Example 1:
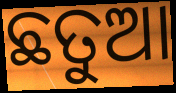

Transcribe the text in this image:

ଛତୁଆ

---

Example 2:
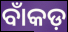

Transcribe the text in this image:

ବାଁକଡ଼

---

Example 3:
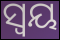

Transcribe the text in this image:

ସ୍ୱୟ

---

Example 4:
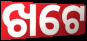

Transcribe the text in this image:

ଖଟେ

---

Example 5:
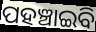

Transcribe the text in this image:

ପହଞ୍ଚାଇବି